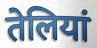
तेलियां